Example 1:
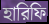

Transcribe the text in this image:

হারিফি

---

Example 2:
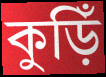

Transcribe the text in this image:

কুড়িঁ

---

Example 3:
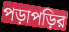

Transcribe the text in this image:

পড়াপড়ির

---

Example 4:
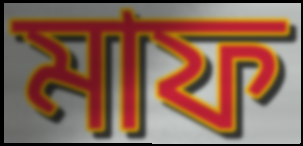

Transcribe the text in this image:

মাফ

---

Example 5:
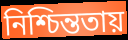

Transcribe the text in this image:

নিশ্চিন্ততায়